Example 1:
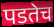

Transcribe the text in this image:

पडतेच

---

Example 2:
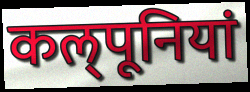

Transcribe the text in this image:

कल्पूनियां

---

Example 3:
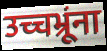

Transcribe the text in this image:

उच्चभ्रूंना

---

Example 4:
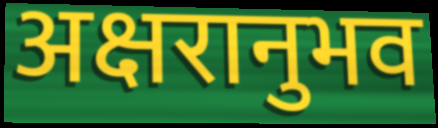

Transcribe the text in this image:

अक्षरानुभव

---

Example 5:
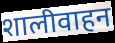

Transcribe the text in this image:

शालीवाहन